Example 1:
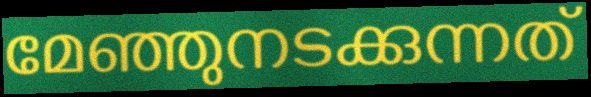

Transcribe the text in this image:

മേഞ്ഞുനടക്കുന്നത്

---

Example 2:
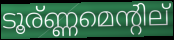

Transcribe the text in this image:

ടൂര്ണ്ണമെന്റില്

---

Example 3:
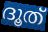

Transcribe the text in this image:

ദൂത്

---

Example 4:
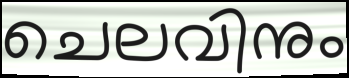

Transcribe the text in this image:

ചെലവിനും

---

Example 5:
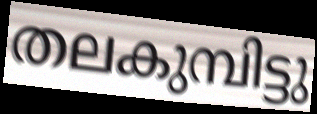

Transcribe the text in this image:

തലകുമ്പിട്ടു